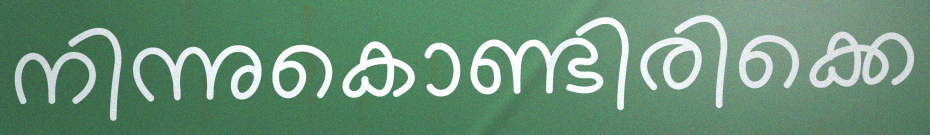
നിന്നുകൊണ്ടിരിക്കെ